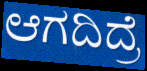
ಆಗದಿದ್ರೆ